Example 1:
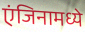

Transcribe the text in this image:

एंजिनामध्ये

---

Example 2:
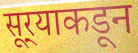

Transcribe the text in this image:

सूर्याकडून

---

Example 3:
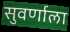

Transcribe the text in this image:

सुवर्णाला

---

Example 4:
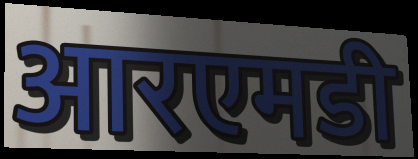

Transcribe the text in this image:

आरएमडी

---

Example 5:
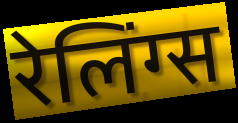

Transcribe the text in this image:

रेलिंग्स